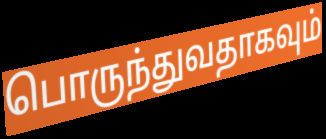
பொருந்துவதாகவும்